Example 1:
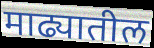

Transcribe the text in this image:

माढ्यातील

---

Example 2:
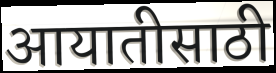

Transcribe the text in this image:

आयातीसाठी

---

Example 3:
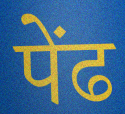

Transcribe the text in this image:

पेंढ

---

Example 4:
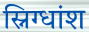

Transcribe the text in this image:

स्निग्धांश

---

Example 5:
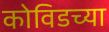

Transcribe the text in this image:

कोविडच्या